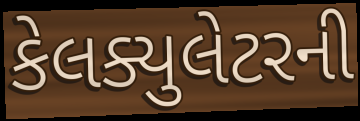
કેલક્યુલેટરની